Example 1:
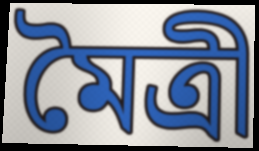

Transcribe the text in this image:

মৈত্রী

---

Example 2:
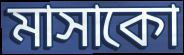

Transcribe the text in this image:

মাসাকো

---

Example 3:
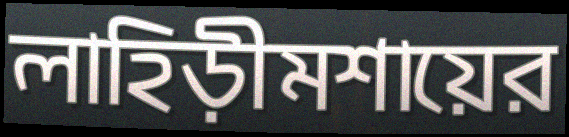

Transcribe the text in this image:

লাহিড়ীমশায়ের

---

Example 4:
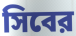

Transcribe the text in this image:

সিবের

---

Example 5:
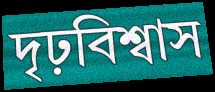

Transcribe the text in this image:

দৃঢ়বিশ্বাস